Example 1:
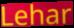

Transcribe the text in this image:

Lehar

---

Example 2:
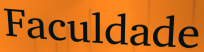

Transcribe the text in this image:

Faculdade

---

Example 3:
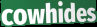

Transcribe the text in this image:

cowhides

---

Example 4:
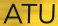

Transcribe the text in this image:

ATU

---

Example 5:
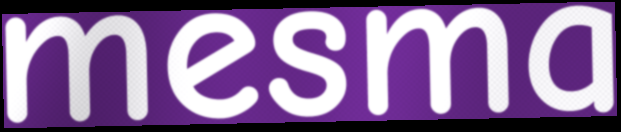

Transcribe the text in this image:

mesma